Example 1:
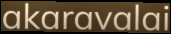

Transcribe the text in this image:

akaravalai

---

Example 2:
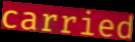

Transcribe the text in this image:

carried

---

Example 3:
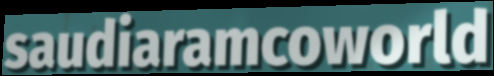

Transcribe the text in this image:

saudiaramcoworld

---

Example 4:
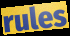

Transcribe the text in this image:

rules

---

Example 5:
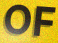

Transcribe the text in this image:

OF